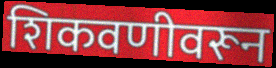
शिकवणीवरून